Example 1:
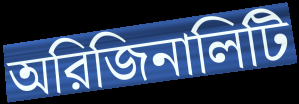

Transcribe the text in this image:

অরিজিনালিটি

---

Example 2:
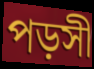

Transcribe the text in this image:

পড়সী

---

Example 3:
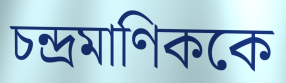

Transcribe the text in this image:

চন্দ্রমাণিককে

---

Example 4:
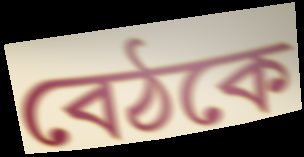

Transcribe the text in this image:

বেঠকে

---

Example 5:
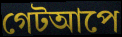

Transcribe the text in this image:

গেটআপে